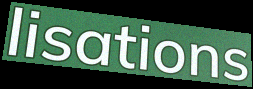
lisations